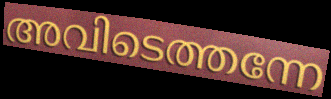
അവിടെത്തന്നേ